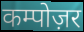
कम्पोज़र